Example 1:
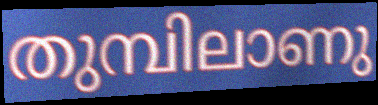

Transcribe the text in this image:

തുമ്പിലാണു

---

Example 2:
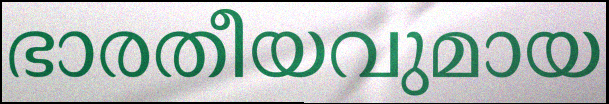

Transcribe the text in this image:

ഭാരതീയവുമായ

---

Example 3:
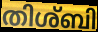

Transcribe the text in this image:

തിശ്ബി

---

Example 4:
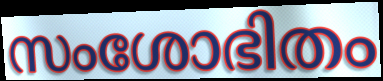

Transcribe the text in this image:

സംശോഭിതം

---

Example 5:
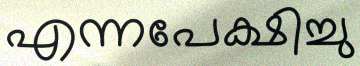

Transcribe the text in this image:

എന്നപേക്ഷിച്ചു